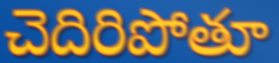
చెదిరిపోతూ